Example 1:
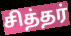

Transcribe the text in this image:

சித்தர்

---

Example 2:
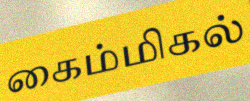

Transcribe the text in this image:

கைம்மிகல்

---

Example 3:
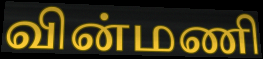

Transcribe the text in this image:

வின்மணி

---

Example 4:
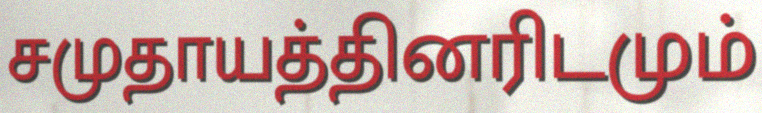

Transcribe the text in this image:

சமுதாயத்தினரிடமும்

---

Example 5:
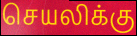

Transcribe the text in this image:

செயலிக்கு